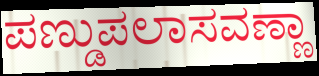
ಪಣ್ಡುಪಲಾಸವಣ್ಣಾ